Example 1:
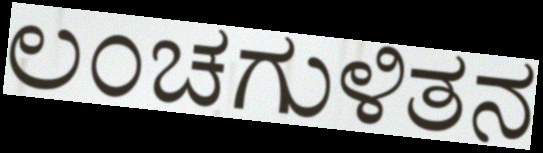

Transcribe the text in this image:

ಲಂಚಗುಳಿತನ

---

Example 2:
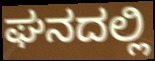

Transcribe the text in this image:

ಘನದಲ್ಲಿ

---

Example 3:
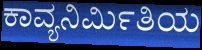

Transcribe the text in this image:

ಕಾವ್ಯನಿರ್ಮಿತಿಯ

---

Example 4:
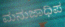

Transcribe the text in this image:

ಮನುಜಾಧಿಪ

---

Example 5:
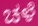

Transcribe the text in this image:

ಚಳೆ